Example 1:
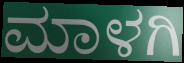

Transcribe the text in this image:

ಮಾಳಗಿ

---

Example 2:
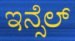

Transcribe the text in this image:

ಇನ್ಸೆಲ್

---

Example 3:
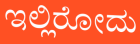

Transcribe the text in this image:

ಇಲ್ಲಿರೋದು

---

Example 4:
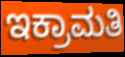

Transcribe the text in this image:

ಇಕ್ರಾಮತಿ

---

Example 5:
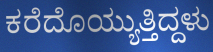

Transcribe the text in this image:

ಕರೆದೊಯ್ಯುತ್ತಿದ್ದಳು